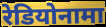
रेडियोनामा